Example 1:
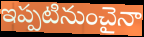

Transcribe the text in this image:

ఇప్పటినుంచైనా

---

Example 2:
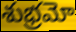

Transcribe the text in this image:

శుభ్రమో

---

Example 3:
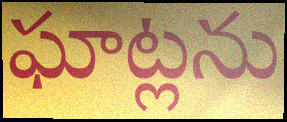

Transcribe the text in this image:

ఘాట్లను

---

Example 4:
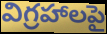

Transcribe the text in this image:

విగ్రహాలపై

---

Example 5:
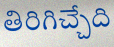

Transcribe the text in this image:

తిరిగిచ్చేది